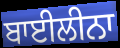
ਬਾਈਲੀਨਾ